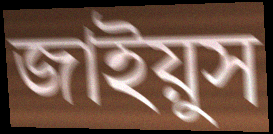
জাইয়ুস